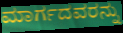
ಮಾರ್ಗದವರನ್ನು